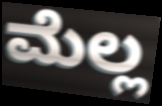
ಮೆಲ್ಲ